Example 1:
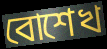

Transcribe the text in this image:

বোশেখ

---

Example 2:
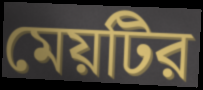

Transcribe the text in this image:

মেয়টির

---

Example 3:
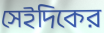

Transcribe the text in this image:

সেইদিকের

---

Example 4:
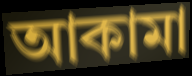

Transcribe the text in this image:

আকামা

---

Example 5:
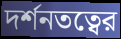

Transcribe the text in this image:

দর্শনতত্বের